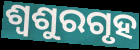
ଶ୍ୱଶୁରଗୃହ